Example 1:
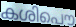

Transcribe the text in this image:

കശിപൌ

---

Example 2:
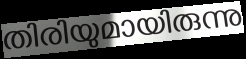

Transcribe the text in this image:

തിരിയുമായിരുന്നു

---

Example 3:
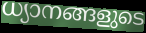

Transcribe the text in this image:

ധ്യാനങ്ങളുടെ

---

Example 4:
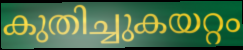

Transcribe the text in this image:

കുതിച്ചുകയറ്റം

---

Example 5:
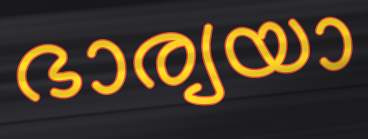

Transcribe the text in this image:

ഭാര്യയാ